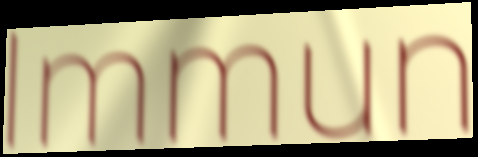
Immun